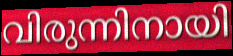
വിരുന്നിനായി